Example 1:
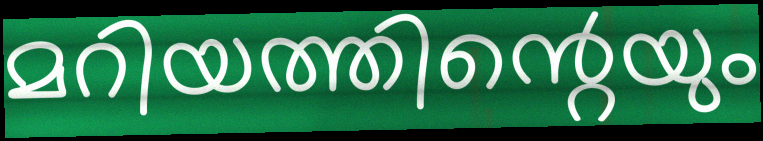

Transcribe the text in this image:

മറിയത്തിന്റെയും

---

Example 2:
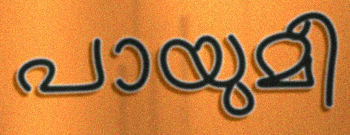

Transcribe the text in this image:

പായുമീ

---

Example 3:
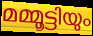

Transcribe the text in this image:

മമ്മൂട്ടിയും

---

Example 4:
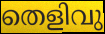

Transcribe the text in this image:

തെളിവു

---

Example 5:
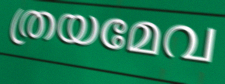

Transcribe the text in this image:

ത്രയമേവ